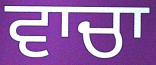
ਵਾਚਾ